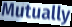
Mutually